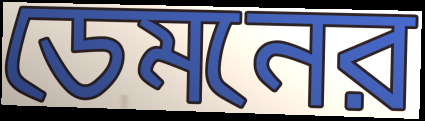
ডেমনের